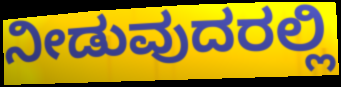
ನೀಡುವುದರಲ್ಲಿ